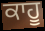
ਕਾਹੂ